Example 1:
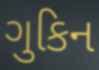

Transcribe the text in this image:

ગુકિન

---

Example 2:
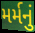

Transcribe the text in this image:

મર્મનું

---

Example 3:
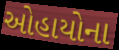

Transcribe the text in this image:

ઓહાયોના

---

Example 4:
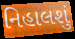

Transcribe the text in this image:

નિહાલશું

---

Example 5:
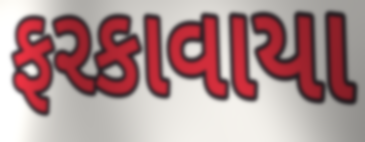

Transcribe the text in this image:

ફરકાવાયા